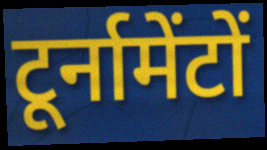
टूर्नामेंटों